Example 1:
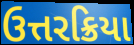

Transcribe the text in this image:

ઉત્તરક્રિયા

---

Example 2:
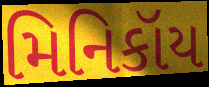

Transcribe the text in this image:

મિનિકૉય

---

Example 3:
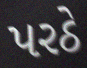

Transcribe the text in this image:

પરઠે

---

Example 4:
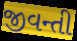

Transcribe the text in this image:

જીવન્તી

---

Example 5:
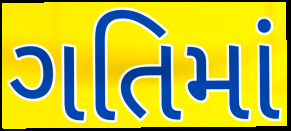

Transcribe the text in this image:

ગતિમાં